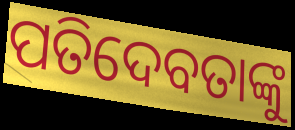
ପତିଦେବତାଙ୍କୁ